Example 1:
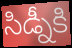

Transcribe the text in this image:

సిడ్నీకి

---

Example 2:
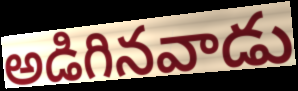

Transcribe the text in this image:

అడిగినవాడు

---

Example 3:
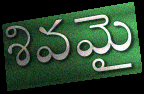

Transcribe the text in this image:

శివమై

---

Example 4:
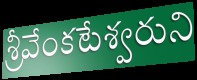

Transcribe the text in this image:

శ్రీవేంకటేశ్వరుని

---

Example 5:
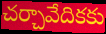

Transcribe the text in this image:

చర్చావేదికకు